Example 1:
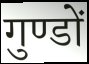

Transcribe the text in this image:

गुण्डों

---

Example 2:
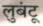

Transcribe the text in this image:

लुबंटू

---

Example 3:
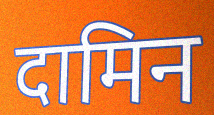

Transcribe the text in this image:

दामिन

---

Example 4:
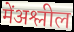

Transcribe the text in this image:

मेंअश्लील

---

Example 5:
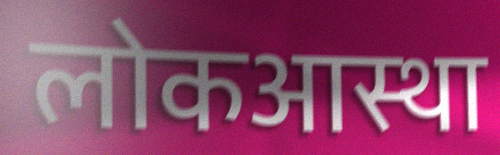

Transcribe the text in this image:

लोकआस्था